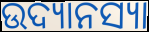
ଉଦ୍ୟାନସ୍ୟା